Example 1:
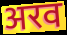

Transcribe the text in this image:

अरव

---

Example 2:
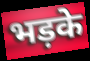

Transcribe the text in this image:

भड़के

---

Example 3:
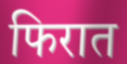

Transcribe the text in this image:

फिरात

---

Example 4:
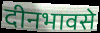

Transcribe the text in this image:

दीनभावसे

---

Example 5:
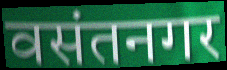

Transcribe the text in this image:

वसंतनगर